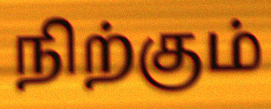
நிற்கும்